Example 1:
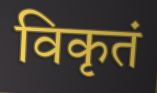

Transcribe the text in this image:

विकृतं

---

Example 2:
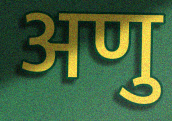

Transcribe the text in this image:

अणु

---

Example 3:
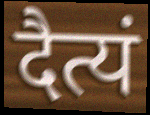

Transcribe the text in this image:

दैत्यं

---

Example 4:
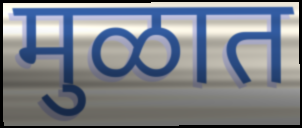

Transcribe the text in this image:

मुळात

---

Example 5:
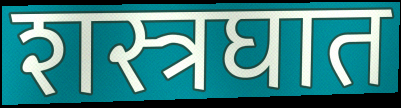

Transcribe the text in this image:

शस्त्रघात